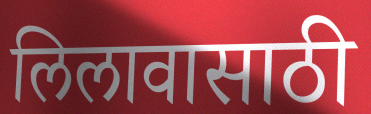
लिलावासाठी